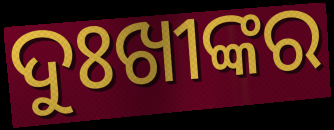
ଦୁଃଖୀଙ୍କର